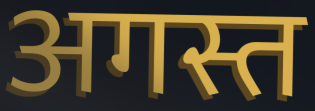
अगस्त